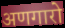
अणगारो